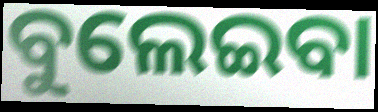
ବୁଲେଇବା